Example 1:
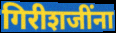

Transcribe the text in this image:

गिरीशजींना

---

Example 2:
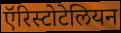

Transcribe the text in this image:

ऍरिस्टोटेलियन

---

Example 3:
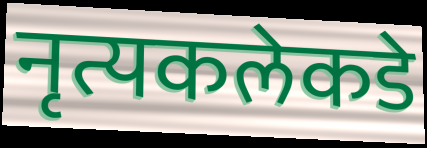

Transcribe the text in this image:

नृत्यकलेकडे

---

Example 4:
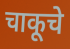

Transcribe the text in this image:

चाकूचे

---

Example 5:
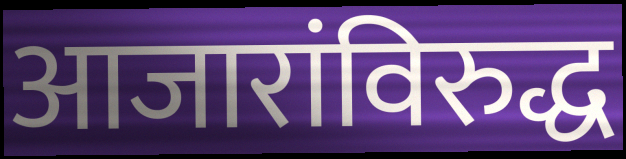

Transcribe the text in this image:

आजारांविरुद्ध